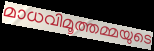
മാധവിമൂത്തമ്മയുടെ